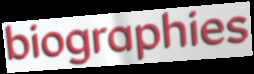
biographies